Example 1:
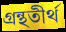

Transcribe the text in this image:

গ্রন্থতীর্থ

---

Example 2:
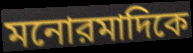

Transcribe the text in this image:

মনোরমাদিকে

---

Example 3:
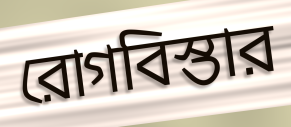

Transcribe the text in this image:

রোগবিস্তার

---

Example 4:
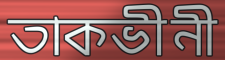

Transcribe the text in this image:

তাকভীনী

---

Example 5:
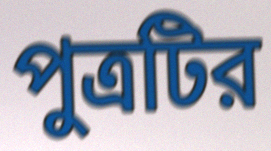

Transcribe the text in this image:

পুত্রটির